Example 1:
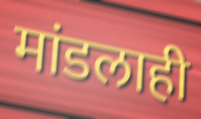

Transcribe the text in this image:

मांडलाही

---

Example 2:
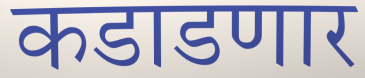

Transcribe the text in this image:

कडाडणार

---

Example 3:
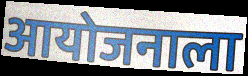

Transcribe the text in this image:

आयोजनाला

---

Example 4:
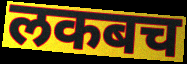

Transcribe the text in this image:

लकबच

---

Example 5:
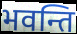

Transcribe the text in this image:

भवन्ति